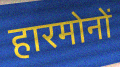
हारमोनों